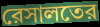
রেসালতের